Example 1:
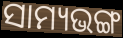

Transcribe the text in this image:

ସାମ୍ଯଭଙ୍ଗ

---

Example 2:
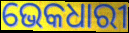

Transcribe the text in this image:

ଭେକଧାରୀ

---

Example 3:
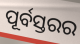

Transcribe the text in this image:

ପୂର୍ବସ୍ତରର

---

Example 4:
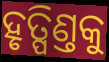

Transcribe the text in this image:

ହୃତ୍ପିଣ୍ତକୁ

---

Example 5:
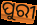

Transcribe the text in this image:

ପୁରୀ